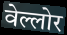
वेल्लोर